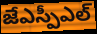
జేఎస్పీఎల్